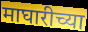
माघारीच्या